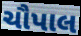
ચૌપાલ